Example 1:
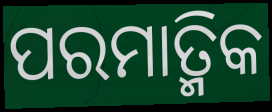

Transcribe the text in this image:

ପରମାତ୍ମିକ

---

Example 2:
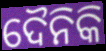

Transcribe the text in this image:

ଦୈନିକି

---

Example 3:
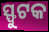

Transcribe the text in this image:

ସ୍ଫୁଟକ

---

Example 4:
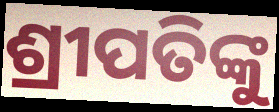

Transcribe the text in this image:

ଶ୍ରୀପତିଙ୍କୁ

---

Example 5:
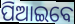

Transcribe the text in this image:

ପିଆଇବେ